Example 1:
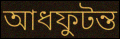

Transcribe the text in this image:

আধফুটন্ত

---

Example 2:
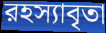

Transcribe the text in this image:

রহস্যাবৃতা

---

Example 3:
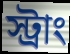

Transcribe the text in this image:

স্ট্রাং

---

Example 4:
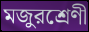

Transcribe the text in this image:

মজুরশ্রেণী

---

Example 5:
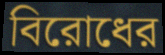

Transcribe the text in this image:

বিরোধের